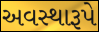
અવસ્થારૂપે